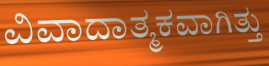
ವಿವಾದಾತ್ಮಕವಾಗಿತ್ತು